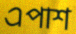
এপাশ